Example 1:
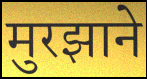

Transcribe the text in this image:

मुरझाने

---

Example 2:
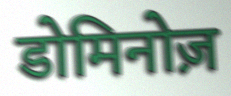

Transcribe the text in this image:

डोमिनोज़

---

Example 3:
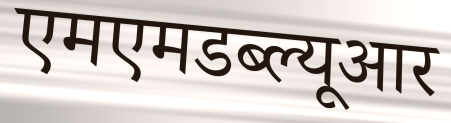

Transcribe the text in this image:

एमएमडब्ल्यूआर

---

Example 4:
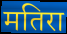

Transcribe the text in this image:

मतिरा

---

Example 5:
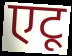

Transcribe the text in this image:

एटू